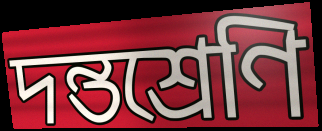
দন্তশ্রেণি